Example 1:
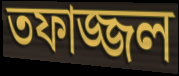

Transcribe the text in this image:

তফাজ্জল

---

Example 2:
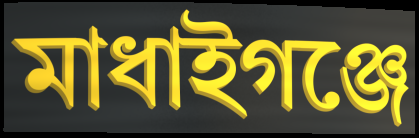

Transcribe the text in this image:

মাধাইগঞ্জে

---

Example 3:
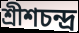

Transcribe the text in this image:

শ্রীশচন্দ্র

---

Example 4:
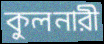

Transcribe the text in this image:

কুলনারী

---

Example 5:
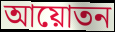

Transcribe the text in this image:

আয়োতন